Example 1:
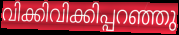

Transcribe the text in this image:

വിക്കിവിക്കിപ്പറഞ്ഞു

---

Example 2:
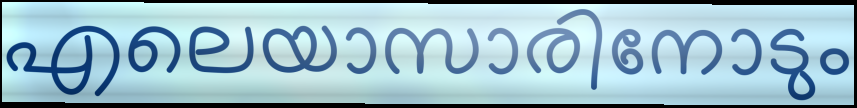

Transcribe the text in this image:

എലെയാസാരിനോടും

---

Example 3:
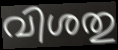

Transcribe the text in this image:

വിശതു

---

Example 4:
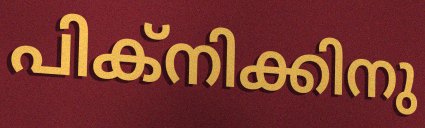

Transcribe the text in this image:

പിക്നിക്കിനു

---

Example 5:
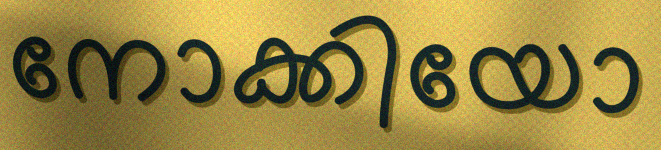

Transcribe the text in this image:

നോക്കിയോ